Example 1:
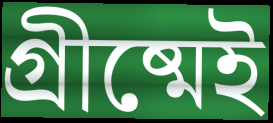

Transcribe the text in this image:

গ্রীষ্মেই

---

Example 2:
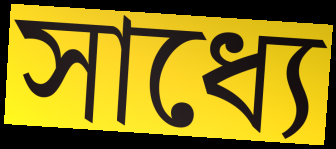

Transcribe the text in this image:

সাধ্যে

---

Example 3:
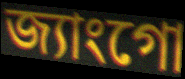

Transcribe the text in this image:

জ্যাংগো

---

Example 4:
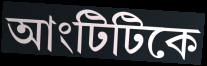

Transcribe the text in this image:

আংটিটিকে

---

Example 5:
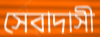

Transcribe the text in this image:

সেবাদাসী